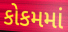
કોકમમાં